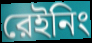
রেইনিং